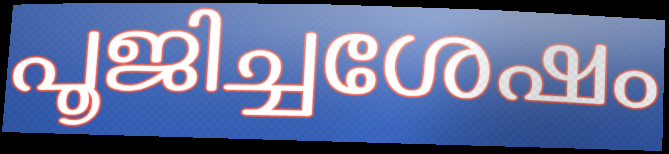
പൂജിച്ചശേഷം